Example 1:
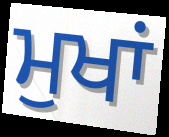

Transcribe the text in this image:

ਮੁਖਾਂ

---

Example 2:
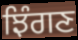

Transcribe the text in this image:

ਝਿੰਗਣ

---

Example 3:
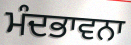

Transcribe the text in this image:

ਮੰਦਭਾਵਨਾ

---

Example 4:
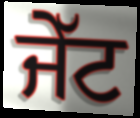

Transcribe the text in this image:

ਜੇੱਟ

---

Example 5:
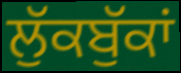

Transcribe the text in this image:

ਲੁੱਕਬੁੱਕਾਂ